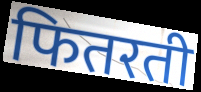
फितरती